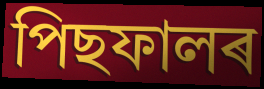
পিছফালৰ